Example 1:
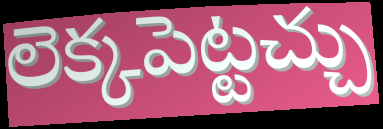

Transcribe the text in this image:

లెక్కపెట్టచ్చు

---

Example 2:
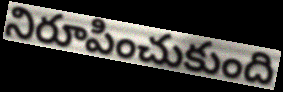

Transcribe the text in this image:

నిరూపించుకుంది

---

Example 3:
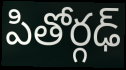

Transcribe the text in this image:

పితోర్గఢ్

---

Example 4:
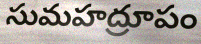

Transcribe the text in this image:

సుమహద్రూపం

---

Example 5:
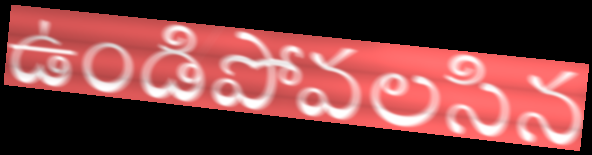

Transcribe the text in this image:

ఉండిపోవలసిన